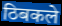
ठिबकले